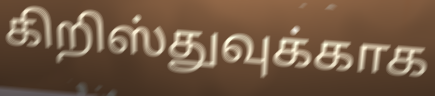
கிறிஸ்துவுக்காக